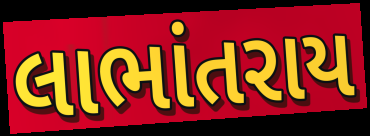
લાભાંતરાય